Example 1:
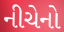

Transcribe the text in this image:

નીચેનો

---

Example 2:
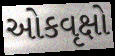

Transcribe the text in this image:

ઓકવૃક્ષો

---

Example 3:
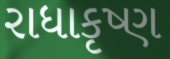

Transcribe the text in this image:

રાધાકૃષ્ણ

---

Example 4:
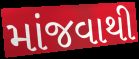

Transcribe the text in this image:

માંજવાથી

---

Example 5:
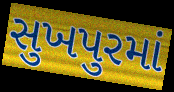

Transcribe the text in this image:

સુખપુરમાં